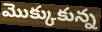
మొక్కుకున్న